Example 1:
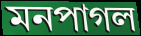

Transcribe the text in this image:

মনপাগল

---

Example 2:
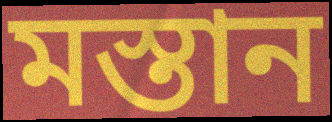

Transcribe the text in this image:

মস্তান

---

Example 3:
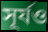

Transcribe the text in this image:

সূর্যও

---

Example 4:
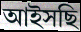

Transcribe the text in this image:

আইসছি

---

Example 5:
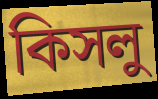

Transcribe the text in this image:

কিসলু